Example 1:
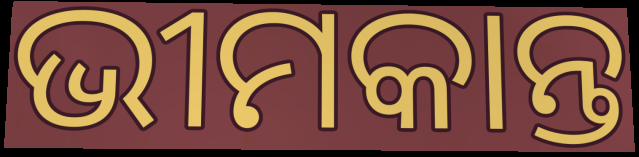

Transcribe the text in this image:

ଭୀମକାନ୍ତ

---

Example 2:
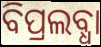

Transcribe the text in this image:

ବିପ୍ରଲବ୍ଧା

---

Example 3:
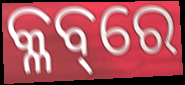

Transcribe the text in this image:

କ୍ଳବ୍‌ରେ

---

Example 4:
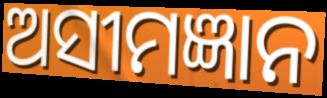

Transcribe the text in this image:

ଅସୀମଜ୍ଞାନ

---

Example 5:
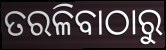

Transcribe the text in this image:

ତରଳିବାଠାରୁ